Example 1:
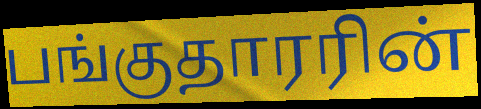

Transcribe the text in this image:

பங்குதாரரின்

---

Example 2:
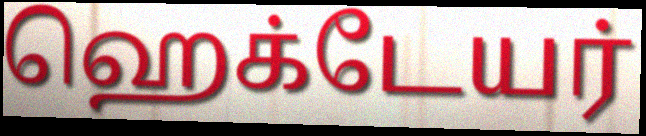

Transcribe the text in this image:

ஹெக்டேயர்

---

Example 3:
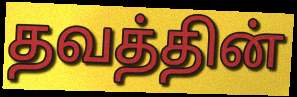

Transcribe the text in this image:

தவத்தின்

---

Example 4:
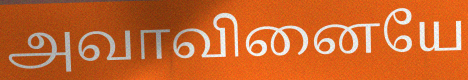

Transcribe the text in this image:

அவாவினையே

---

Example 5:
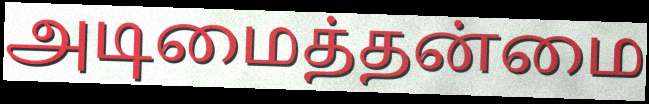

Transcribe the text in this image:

அடிமைத்தன்மை